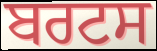
ਬਰਟਸ